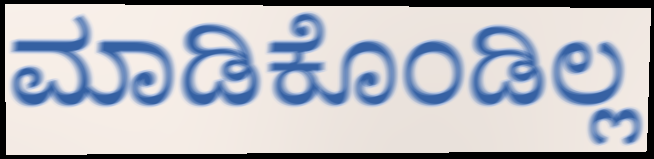
ಮಾಡಿಕೊಂಡಿಲ್ಲ